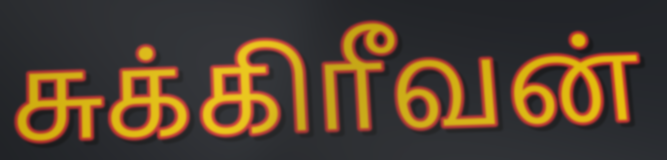
சுக்கிரீவன்